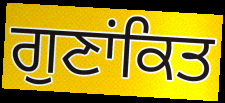
ਗੁਣਾਂਕਿਤ